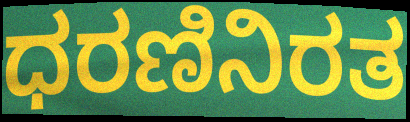
ಧರಣಿನಿರತ